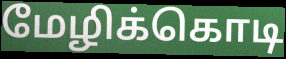
மேழிக்கொடி